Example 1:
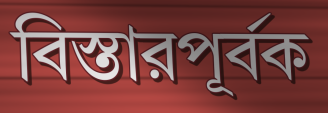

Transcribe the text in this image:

বিস্তারপূর্বক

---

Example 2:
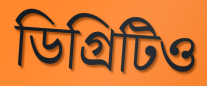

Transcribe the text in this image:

ডিগ্রিটিও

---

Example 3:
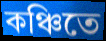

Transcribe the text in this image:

কঞ্চিতে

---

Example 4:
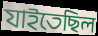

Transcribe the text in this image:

যাইতেছিল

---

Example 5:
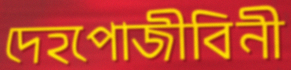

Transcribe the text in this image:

দেহপোজীবিনী